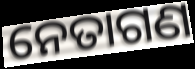
ନେତାଗଣ